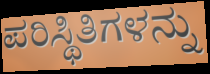
ಪರಿಸ್ಥಿತಿಗಳನ್ನು